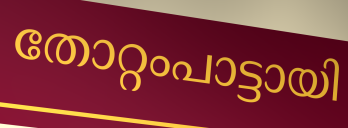
തോറ്റംപാട്ടായി